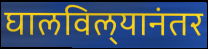
घालविल्यानंतर